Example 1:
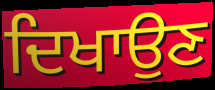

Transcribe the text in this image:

ਦਿਖਾਉਣ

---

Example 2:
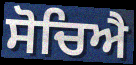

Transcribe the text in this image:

ਸੋਚਿਐ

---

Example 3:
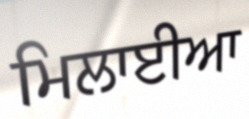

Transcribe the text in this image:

ਮਿਲਾਈਆ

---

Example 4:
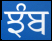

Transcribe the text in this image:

ਝੰਬ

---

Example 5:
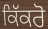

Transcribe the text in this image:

ਕਿੱਕਰੋ